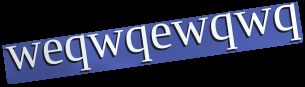
weqwqewqwq